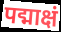
पद्माक्षं